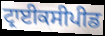
ਟ੍ਰਾਈਕਸੀਪੀਡ